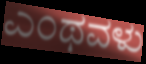
ಎಂಥವಳು